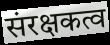
संरक्षकत्व